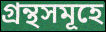
গ্রন্থসমূহে